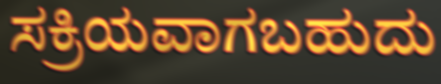
ಸಕ್ರಿಯವಾಗಬಹುದು